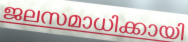
ജലസമാധിക്കായി